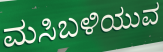
ಮಸಿಬಳಿಯುವ